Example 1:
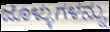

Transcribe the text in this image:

ಜೊಳ್ಳುಗಳನ್ನು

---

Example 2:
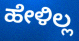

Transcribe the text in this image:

ಹೇಳಿಲ್ಲ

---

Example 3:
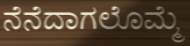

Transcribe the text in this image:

ನೆನೆದಾಗಲೊಮ್ಮೆ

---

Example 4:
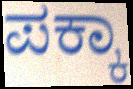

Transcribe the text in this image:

ಪಕ್ಕಾ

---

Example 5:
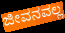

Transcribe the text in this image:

ಜೀವನವಲ್ಲ